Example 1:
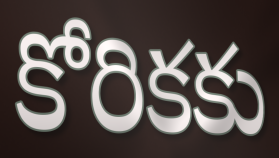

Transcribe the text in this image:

కోరికకు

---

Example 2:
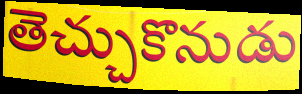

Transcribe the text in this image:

తెచ్చుకొనుడు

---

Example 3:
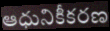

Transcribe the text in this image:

ఆధునికీకరణ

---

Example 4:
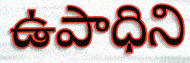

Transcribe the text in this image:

ఉపాధిని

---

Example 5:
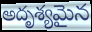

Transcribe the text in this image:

అదృశ్యమైన